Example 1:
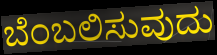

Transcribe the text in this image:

ಬೆಂಬಲಿಸುವುದು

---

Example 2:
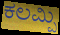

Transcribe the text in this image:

ಕಲಮ್ಪಿ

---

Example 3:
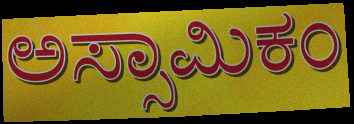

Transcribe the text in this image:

ಅಸ್ಸಾಮಿಕಂ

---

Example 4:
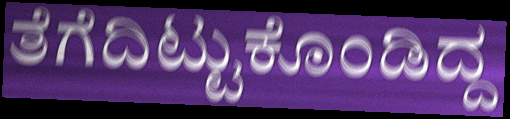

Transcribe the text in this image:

ತೆಗೆದಿಟ್ಟುಕೊಂಡಿದ್ದ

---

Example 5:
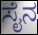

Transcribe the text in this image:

ಸೈನ